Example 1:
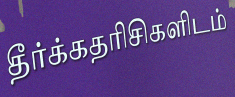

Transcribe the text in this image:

தீர்க்கதரிசிகளிடம்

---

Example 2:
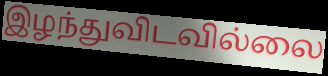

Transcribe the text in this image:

இழந்துவிடவில்லை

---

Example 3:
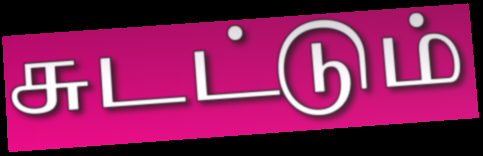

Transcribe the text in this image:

சுடட்டும்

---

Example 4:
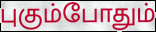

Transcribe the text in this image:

புகும்போதும்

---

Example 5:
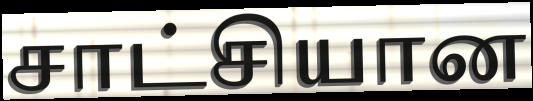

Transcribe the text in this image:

சாட்சியான